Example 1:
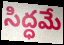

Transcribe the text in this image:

సిద్ధమే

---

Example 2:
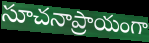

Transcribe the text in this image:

సూచనాప్రాయంగా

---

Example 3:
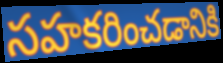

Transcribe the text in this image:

సహకరించడానికి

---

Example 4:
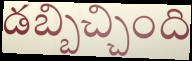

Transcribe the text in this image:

డబ్బిచ్చింది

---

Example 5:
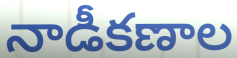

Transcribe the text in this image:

నాడీకణాల